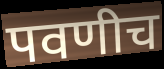
पवणीच